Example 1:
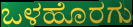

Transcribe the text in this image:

ಒಳಹೊರಗು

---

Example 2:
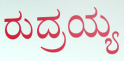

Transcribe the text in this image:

ರುದ್ರಯ್ಯ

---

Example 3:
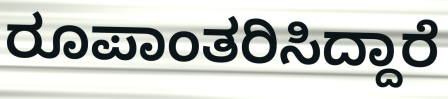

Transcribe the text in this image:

ರೂಪಾಂತರಿಸಿದ್ದಾರೆ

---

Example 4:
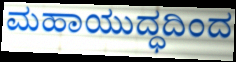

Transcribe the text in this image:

ಮಹಾಯುದ್ಧದಿಂದ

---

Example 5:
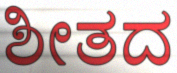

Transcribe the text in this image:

ಶೀತದ